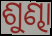
ଶୁଣ୍ଢା